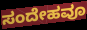
ಸಂದೇಹವೂ